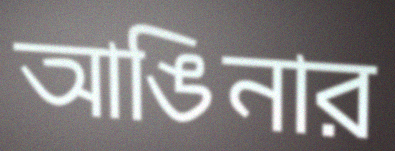
আঙিনার